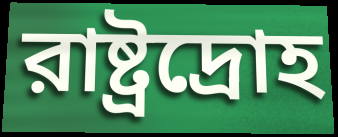
রাষ্ট্রদ্রোহ